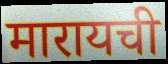
मारायची